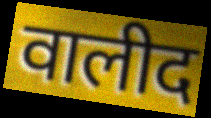
वालीद